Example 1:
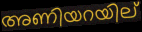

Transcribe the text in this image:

അണിയറയില്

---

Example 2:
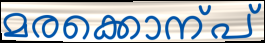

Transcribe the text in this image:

മരക്കൊന്പ്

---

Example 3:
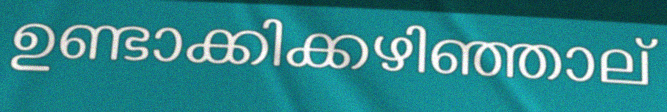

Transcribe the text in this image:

ഉണ്ടാക്കിക്കഴിഞ്ഞാല്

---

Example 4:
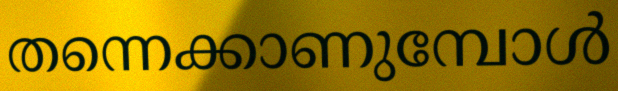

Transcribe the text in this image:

തന്നെക്കാണുമ്പോൾ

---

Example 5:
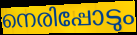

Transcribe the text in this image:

നെരിപ്പോടും